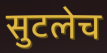
सुटलेच